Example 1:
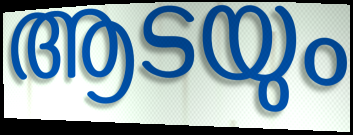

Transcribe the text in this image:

ആടയും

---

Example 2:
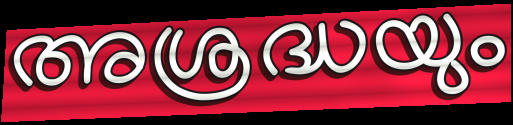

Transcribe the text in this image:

അശ്രദ്ധയും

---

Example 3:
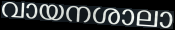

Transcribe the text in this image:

വായനശാലാ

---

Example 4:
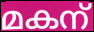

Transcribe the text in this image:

മകന്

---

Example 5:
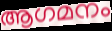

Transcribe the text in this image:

ആഗമനം